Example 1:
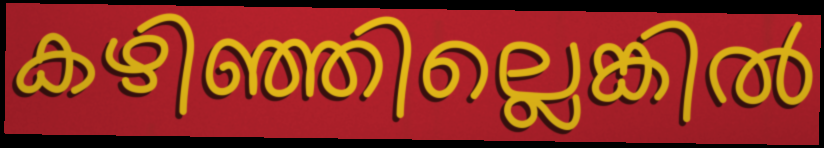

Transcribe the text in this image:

കഴിഞ്ഞില്ലെങ്കിൽ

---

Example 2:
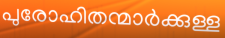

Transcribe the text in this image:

പുരോഹിതന്മാർക്കുള്ള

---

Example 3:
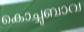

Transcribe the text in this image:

കൊച്ചുബാവ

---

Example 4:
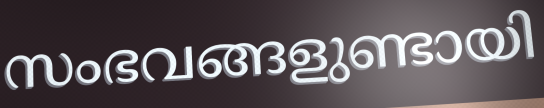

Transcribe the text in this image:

സംഭവങ്ങളുണ്ടായി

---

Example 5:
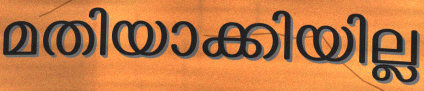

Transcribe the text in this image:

മതിയാക്കിയില്ല